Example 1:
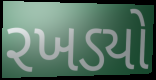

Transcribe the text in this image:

રખડ્યો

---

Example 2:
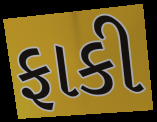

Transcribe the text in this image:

ફાકી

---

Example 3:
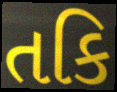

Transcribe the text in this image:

તકિ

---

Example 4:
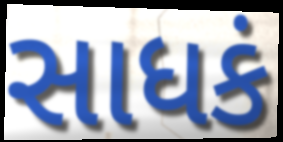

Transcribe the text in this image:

સાધકં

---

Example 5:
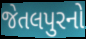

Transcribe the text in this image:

જેતલપુરનો